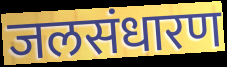
जलसंधारण